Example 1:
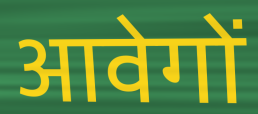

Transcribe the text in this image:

आवेगों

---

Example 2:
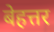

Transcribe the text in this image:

बेहत्तर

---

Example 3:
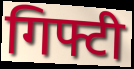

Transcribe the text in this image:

गिफ्टी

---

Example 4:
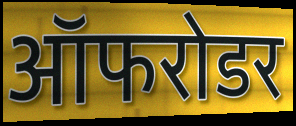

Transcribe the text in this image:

ऑफरोडर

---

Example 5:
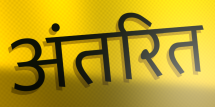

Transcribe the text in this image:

अंतरित